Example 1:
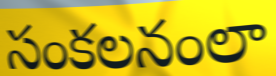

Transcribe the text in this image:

సంకలనంలా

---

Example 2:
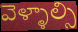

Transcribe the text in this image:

వెళ్ళాల్సి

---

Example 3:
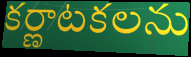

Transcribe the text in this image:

కర్ణాటకలను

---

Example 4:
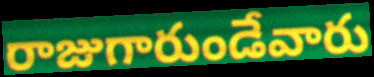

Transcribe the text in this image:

రాజుగారుండేవారు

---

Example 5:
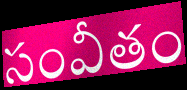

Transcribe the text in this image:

సంవీతం